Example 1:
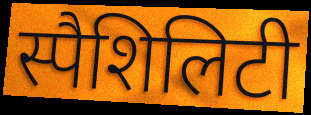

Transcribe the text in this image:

स्पैशिलिटी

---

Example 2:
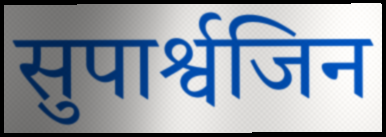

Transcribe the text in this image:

सुपार्श्वजिन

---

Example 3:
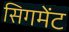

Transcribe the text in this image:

सिगमेंट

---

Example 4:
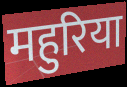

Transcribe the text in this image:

महुरिया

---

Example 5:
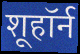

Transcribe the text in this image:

शूहॉर्न